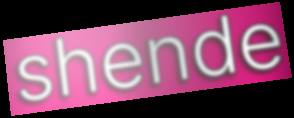
shende